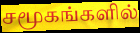
சமூகங்களில்